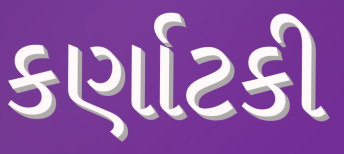
કર્ણાટકી